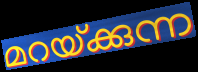
മറയ്‌ക്കുന്ന